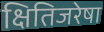
क्षितिजरेषा